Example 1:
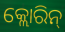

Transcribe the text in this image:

କ୍ଲୋରିନ୍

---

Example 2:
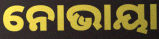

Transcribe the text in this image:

ନୋଭାୟା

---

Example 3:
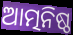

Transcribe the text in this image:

ଆତ୍ମନିଷ୍ଠ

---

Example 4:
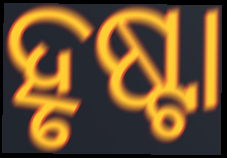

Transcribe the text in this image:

ହୃଷ୍ଟା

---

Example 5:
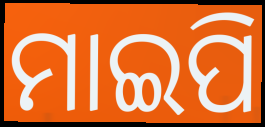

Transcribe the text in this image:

ମାଇପି